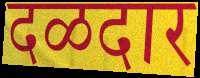
दळदार